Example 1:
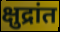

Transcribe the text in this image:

क्षुद्रांत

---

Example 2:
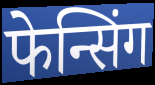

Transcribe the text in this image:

फेन्सिंग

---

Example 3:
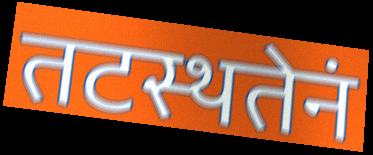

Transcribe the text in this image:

तटस्थतेनं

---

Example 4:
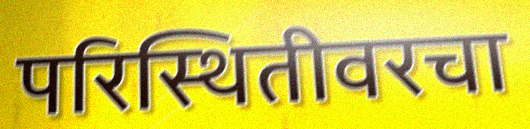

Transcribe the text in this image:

परिस्थितीवरचा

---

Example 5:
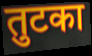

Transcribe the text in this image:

तुटका